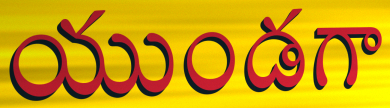
యుండగా